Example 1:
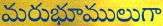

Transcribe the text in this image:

మరుభూములుగా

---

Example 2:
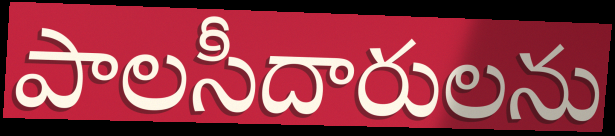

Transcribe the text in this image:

పాలసీదారులను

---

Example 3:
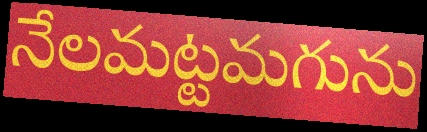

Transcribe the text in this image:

నేలమట్టమగును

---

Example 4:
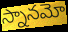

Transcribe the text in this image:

స్నానమో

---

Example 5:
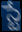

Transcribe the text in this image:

స్టే